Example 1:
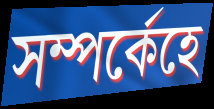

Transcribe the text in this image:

সম্পৰ্কেহে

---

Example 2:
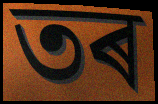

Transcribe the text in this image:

তৰ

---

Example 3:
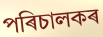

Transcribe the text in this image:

পৰিচালকৰ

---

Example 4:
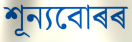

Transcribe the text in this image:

শূন্যবোৰৰ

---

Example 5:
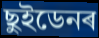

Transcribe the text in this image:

ছুইডেনৰ